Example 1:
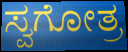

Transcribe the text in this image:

ಸ್ವಗೋತ್ರ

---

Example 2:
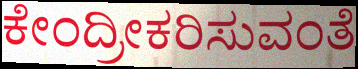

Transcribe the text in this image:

ಕೇಂದ್ರೀಕರಿಸುವಂತೆ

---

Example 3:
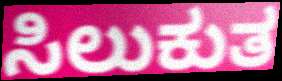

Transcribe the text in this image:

ಸಿಲುಕುತ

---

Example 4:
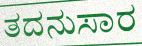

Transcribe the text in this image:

ತದನುಸಾರ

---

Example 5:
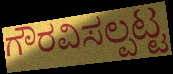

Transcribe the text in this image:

ಗೌರವಿಸಲ್ಪಟ್ಟ